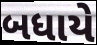
બધાયે